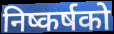
निष्कर्षको